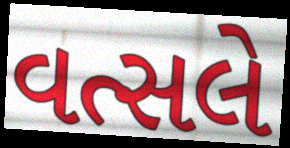
વત્સલે